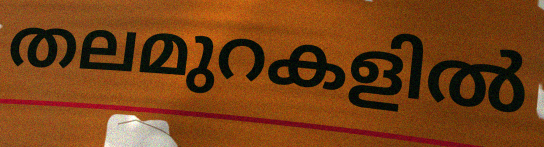
തലമുറകളിൽ